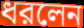
ধরলেন